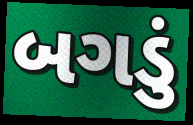
બગડું